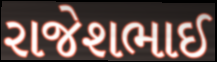
રાજેશભાઈ